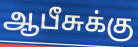
ஆபீசுக்கு